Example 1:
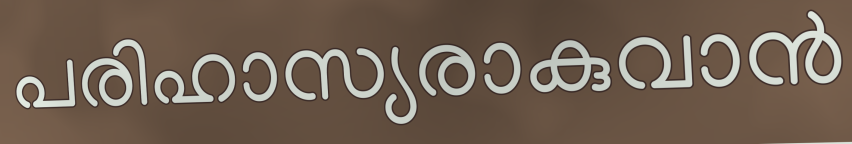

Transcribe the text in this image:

പരിഹാസ്യരാകുവാൻ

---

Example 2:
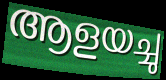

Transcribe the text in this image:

ആളയച്ചു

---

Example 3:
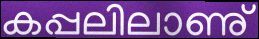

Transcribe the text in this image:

കപ്പലിലാണു്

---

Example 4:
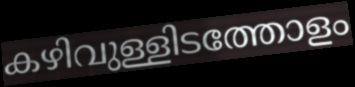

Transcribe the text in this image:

കഴിവുള്ളിടത്തോളം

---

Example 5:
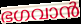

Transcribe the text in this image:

ഭഗവാൻ